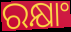
ରକ୍ଷାଂ